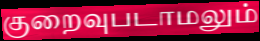
குறைவுபடாமலும்